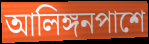
আলিঙ্গনপাশে